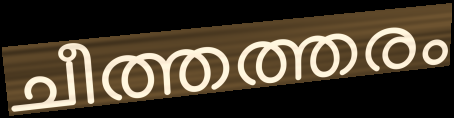
ചീത്തത്തരം